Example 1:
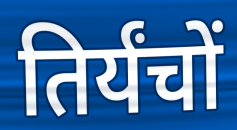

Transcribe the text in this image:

तिर्यंचों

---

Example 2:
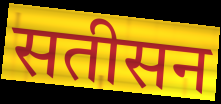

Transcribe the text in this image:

सतीसन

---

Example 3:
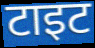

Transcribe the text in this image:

टाइट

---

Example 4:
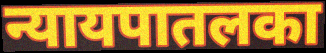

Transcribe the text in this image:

न्यायपातलका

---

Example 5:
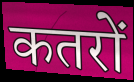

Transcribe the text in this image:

कतरों